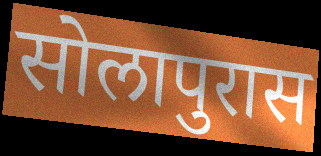
सोलापुरास